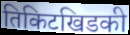
तिकिटखिडकी